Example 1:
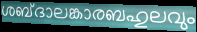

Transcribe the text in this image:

ശബ്ദാലങ്കാരബഹുലവും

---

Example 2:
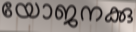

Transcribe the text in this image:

യോജനക്കു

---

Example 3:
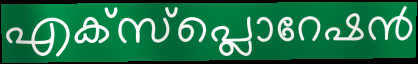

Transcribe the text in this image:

എക്സ്പ്ലൊറേഷൻ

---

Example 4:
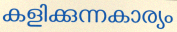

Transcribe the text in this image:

കളിക്കുന്നകാര്യം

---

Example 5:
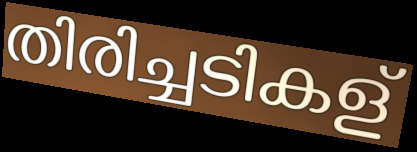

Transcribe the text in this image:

തിരിച്ചടികള്